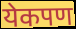
येकपण